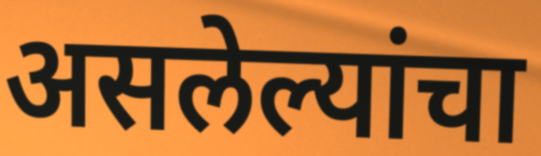
असलेल्यांचा